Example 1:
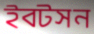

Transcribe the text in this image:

ইবটসন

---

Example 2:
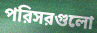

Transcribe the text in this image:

পরিসরগুলো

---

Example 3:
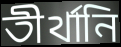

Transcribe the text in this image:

তীর্থানি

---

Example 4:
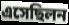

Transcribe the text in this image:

এসেছিলন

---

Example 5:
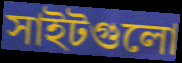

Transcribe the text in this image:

সাইটগুলো